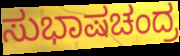
ಸುಭಾಷಚಂದ್ರ